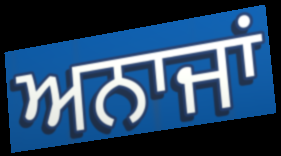
ਅਨਾਜਾਂ